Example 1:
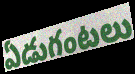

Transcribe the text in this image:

ఏడుగంటలు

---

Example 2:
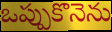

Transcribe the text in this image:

ఒప్పుకొనెను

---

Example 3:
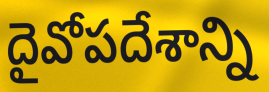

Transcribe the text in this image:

దైవోపదేశాన్ని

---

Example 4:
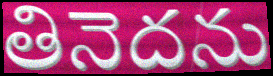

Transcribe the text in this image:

తినెదను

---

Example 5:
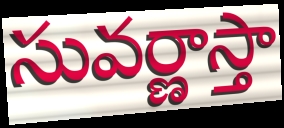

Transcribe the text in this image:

సువర్ణాస్తా